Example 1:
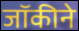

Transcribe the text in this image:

जॉकीने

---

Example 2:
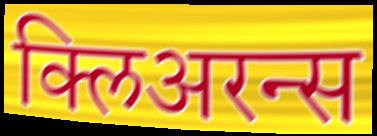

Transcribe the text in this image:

क्लिअरन्स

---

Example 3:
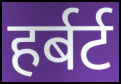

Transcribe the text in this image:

हर्बर्ट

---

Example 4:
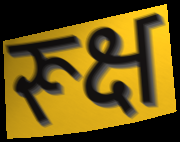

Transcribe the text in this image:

रूक्ष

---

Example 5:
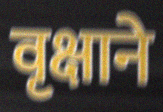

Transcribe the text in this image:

वृक्षाने